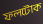
ফলটোক